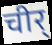
चीर्